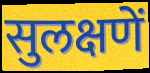
सुलक्षणें